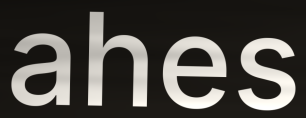
ahes